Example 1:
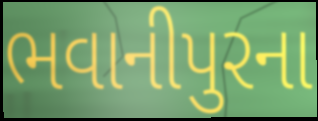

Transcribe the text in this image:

ભવાનીપુરના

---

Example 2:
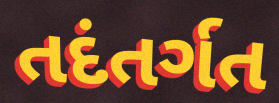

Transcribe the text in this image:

તદંતર્ગત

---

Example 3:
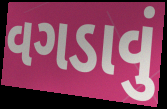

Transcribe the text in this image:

વગડાવું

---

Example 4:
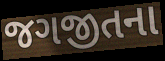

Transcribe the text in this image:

જગજીતના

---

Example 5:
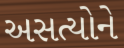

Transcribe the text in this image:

અસત્યોને